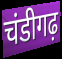
चंडीगढ़